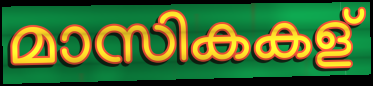
മാസികകള്